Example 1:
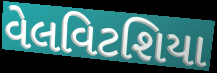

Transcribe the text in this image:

વેલવિટશિયા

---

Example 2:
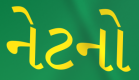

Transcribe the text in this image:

નેટનો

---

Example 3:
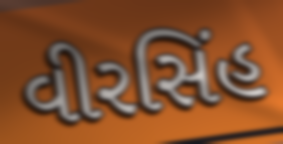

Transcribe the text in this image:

વીરસિંહ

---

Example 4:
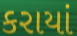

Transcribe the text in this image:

કરાયાં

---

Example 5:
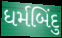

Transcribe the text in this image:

ધર્મબિંદુ